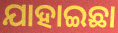
ଯାହାଇଛା